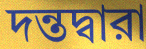
দন্তদ্বারা